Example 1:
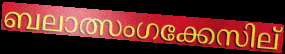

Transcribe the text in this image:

ബലാത്സംഗക്കേസില്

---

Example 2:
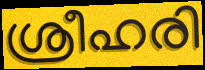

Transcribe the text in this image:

ശ്രീഹരി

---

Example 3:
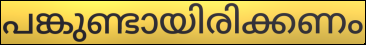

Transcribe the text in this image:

പങ്കുണ്ടായിരിക്കണം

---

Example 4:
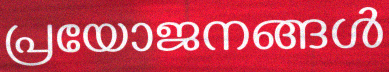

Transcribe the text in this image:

പ്രയോജനങ്ങൾ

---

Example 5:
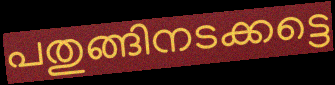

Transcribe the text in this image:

പതുങ്ങിനടക്കട്ടെ